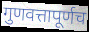
गुणवत्तापूर्णच